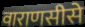
वाराणसीसे